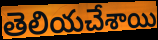
తెలియచేశాయి